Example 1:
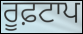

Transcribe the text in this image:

ਰੂਫ਼ਟਾਪ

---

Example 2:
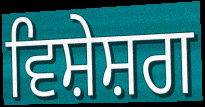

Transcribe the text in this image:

ਵਿਸ਼ੇਸ਼ਗ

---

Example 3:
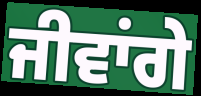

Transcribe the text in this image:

ਜੀਵਾਂਗੇ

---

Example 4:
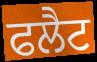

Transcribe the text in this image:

ਫਲੈਟ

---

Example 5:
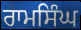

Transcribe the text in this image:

ਰਾਮਸਿੰਘ